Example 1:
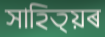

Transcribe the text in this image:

সাহিত্য়ৰ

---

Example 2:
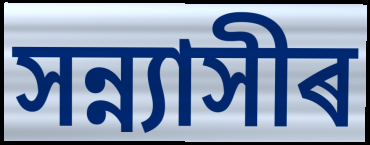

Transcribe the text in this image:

সন্ন্যাসীৰ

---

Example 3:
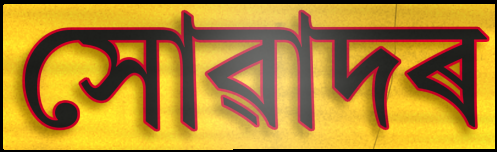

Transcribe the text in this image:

সোৱাদৰ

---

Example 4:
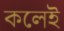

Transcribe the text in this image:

কলেই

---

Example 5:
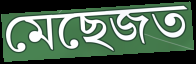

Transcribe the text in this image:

মেছেজত